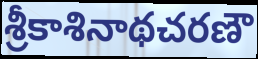
శ్రీకాశినాథచరణౌ